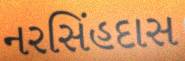
નરસિંહદાસ